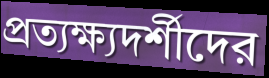
প্রত্যক্ষ্যদর্শীদের